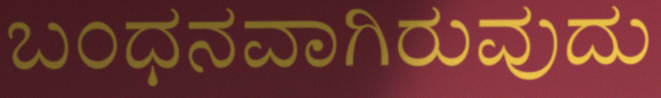
ಬಂಧನವಾಗಿರುವುದು